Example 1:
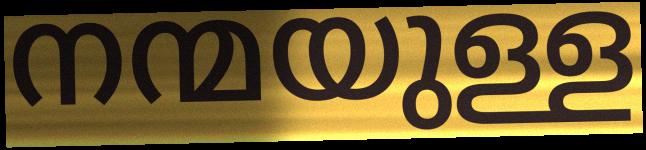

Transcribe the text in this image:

നന്മയുള്ള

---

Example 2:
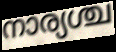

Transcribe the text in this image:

നാര്യശ്ച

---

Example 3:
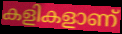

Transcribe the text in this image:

കളികളാണ്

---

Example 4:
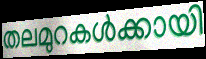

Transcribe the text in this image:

തലമുറകൾക്കായി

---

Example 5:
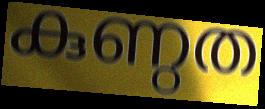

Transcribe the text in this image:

കുണ്ഠത